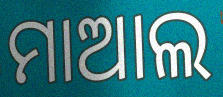
ମାଆଲ